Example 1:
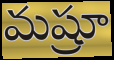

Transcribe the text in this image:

మష్రూ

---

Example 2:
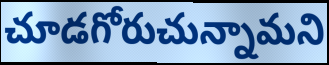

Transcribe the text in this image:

చూడగోరుచున్నామని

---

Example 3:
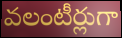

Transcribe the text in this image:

వలంటీర్లుగా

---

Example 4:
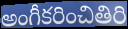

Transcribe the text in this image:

అంగీకరించితిరి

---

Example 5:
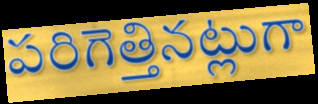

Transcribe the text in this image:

పరిగెత్తినట్లుగా